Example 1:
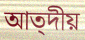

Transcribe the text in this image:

আত্দীয়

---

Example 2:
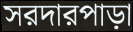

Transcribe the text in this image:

সরদারপাড়া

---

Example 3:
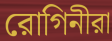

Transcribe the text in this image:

রোগিনীরা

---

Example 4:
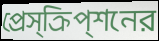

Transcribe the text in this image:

প্রেস্‌ক্রিপ্‌শনের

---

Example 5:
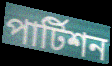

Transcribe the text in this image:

পার্টিশন